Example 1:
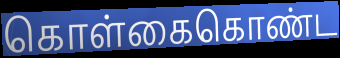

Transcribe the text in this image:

கொள்கைகொண்ட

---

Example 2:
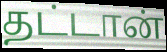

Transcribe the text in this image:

தட்டான்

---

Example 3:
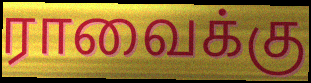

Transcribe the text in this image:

ராவைக்கு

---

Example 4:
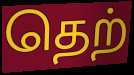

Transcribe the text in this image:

தெற்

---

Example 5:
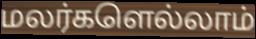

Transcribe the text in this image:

மலர்களெல்லாம்